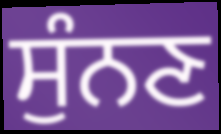
ਸੁੰਨਣ